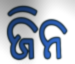
ଜିନ